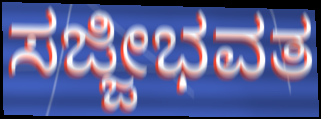
ಸಜ್ಜೀಭವತ